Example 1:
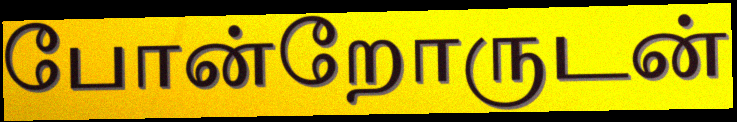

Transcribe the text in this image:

போன்றோருடன்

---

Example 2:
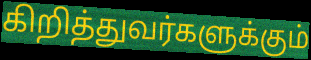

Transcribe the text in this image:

கிறித்துவர்களுக்கும்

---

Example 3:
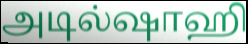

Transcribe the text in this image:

அடில்ஷாஹி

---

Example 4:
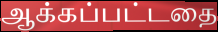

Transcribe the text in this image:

ஆக்கப்பட்டதை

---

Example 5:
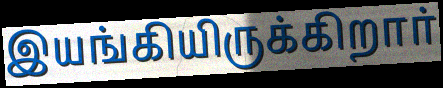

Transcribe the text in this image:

இயங்கியிருக்கிறார்